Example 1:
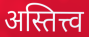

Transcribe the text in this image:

अस्तित्त्व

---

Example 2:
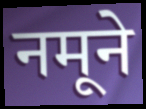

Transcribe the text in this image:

नमूने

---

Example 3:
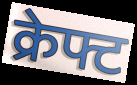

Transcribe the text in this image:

क्रेफ्ट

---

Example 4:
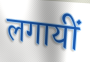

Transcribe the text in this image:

लगायीं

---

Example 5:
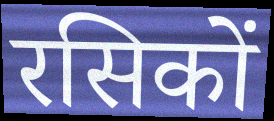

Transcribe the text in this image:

रसिकों